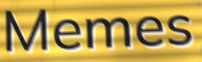
Memes